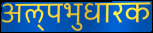
अल्पभुधारक